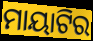
ମାୟାଟିର